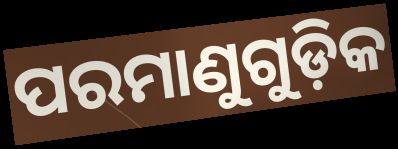
ପରମାଣୁଗୁଡ଼ିକ